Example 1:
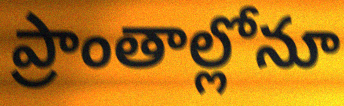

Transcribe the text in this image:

ప్రాంతాల్లోనూ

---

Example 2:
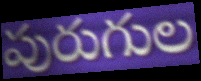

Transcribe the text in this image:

పురుగుల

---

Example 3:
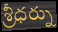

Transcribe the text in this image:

శ్రీధర్ను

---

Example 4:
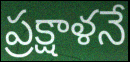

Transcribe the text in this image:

ప్రక్షాళనే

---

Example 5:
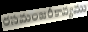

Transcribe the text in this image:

రసమంజరీకావ్యము